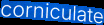
corniculate